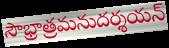
సౌభ్రాత్రమనుదర్శయన్